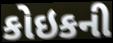
કોઇકની